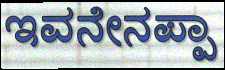
ಇವನೇನಪ್ಪಾ